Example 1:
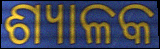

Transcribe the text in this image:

ଶ୍ୟାଳକ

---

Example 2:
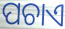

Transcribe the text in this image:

ପଚାଏ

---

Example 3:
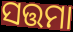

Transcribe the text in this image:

ସତ୍ତମା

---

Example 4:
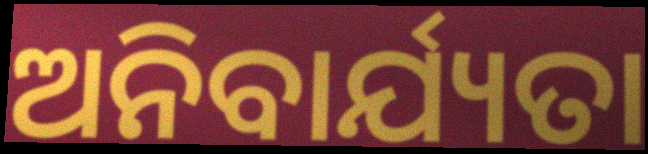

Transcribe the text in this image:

ଅନିବାର୍ଯ୍ୟତା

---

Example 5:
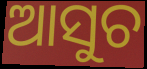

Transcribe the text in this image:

ଆସୁଚ